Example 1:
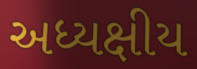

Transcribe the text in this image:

અધ્યક્ષીય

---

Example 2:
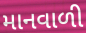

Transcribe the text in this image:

માનવાળી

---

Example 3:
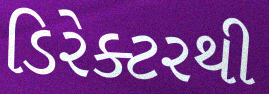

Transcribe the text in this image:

ડિરેક્ટરથી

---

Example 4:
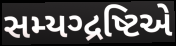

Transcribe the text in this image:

સમ્યગ્દ્રષ્ટિએ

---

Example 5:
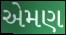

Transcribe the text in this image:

એમણ